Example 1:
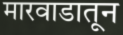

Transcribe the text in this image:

मारवाडातून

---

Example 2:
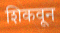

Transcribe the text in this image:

शिकवून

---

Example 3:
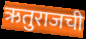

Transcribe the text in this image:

ऋतुराजची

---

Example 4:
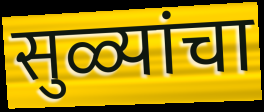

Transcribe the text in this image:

सुळ्यांचा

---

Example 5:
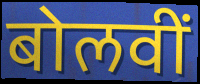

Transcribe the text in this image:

बोलवीं